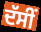
ਦੱਸੀਂ